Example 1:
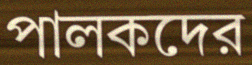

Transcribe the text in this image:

পালকদের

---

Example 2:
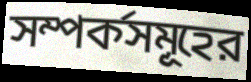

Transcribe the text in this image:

সম্পর্কসমূহের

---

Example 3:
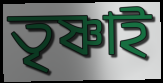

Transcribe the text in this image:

তৃষ্ণাই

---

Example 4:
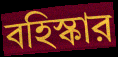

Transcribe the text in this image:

বহিস্কার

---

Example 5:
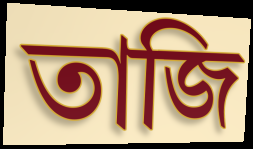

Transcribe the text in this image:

তাজি